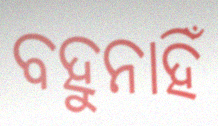
ବହୁନାହିଁ